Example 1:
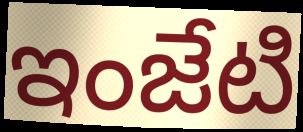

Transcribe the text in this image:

ఇంజేటి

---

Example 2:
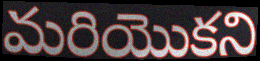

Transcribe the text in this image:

మరియొకని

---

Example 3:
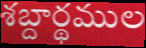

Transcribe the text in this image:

శబ్దార్థముల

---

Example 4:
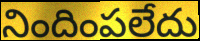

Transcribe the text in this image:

నిందింపలేదు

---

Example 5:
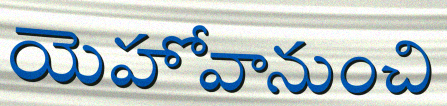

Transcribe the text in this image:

యెహోవానుంచి